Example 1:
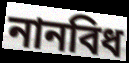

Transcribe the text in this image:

নানবিধ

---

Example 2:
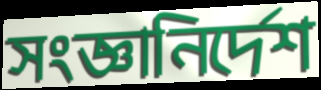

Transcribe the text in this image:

সংজ্ঞানির্দেশ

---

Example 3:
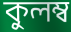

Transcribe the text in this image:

কুলম্ব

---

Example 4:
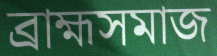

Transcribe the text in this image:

ব্রাহ্মসমাজ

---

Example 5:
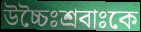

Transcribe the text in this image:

উচ্চৈঃশ্রবাঃকে